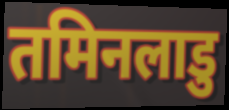
तमिनलाडु